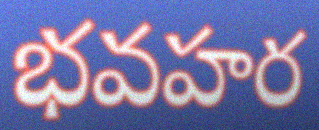
భవహర